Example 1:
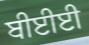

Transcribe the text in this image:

ਬੀਈਈ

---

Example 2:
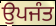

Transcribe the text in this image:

ਉਪਜੰਤ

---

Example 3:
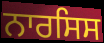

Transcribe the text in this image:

ਨਾਰਸਿਸ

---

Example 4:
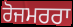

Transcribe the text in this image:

ਰੋਜਮਰਰਾ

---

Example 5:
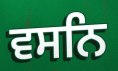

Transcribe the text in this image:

ਵਸਨਿ